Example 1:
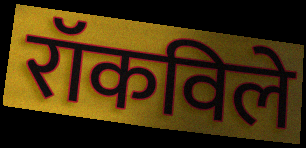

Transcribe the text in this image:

रॉकविले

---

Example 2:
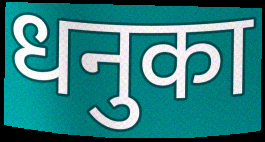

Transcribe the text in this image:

धनुका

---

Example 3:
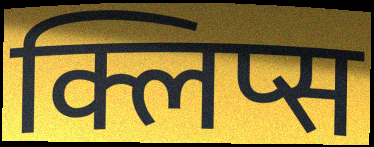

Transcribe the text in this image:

क्लिप्स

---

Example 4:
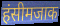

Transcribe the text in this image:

हंसीमजाक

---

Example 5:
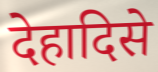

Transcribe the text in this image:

देहादिसे